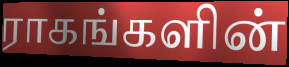
ராகங்களின்